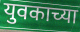
युवकाच्या